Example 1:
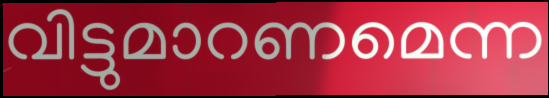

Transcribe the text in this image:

വിട്ടുമാറണമെന്ന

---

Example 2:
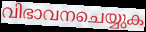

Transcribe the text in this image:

വിഭാവനചെയ്യുക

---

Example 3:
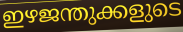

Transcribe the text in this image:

ഇഴജന്തുക്കളുടെ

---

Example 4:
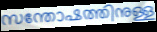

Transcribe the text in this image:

സന്തോഷത്തിനുള്ള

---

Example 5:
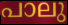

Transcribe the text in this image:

പാലു